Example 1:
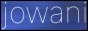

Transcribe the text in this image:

jowani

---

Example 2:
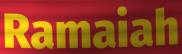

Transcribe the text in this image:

Ramaiah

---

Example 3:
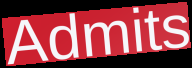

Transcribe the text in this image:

Admits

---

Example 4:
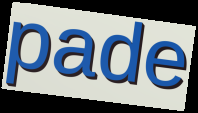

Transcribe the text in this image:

pade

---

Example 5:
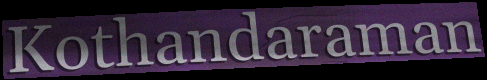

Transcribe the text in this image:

Kothandaraman